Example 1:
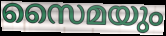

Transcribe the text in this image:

സൈമയും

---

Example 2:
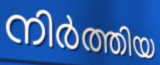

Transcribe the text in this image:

നിർത്തിയ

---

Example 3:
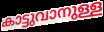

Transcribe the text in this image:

കാട്ടുവാനുള്ള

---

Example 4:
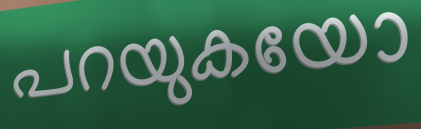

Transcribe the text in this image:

പറയുകയോ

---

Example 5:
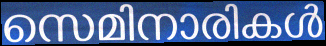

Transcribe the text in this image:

സെമിനാരികൾ